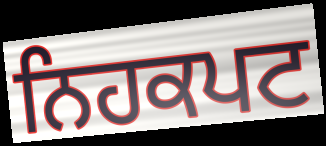
ਨਿਹਕਪਟ